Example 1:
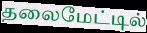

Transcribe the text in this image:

தலைமேட்டில்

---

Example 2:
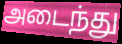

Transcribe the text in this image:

அடைந்து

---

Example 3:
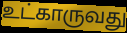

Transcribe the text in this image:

உட்காருவது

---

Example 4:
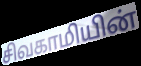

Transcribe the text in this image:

சிவகாமியின்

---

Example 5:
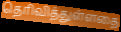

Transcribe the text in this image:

தெரிவித்துள்ளதை